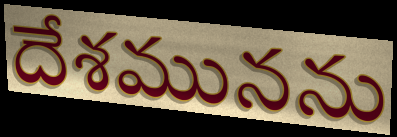
దేశమునను